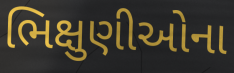
ભિક્ષુણીઓના